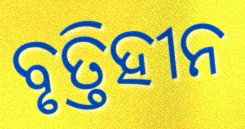
ବୃତ୍ତିହୀନ